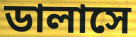
ডালাসে